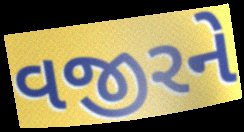
વજીરને